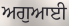
ਅਗੁਆਈ